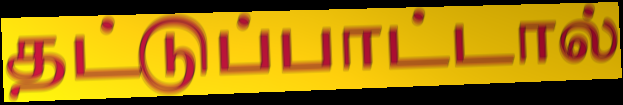
தட்டுப்பாட்டால்